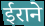
ईराने